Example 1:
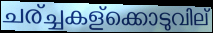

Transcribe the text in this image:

ചര്ച്ചകള്ക്കൊടുവില്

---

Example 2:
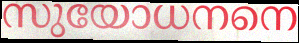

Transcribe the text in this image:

സുയോധനനെ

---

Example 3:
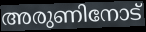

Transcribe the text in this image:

അരുണിനോട്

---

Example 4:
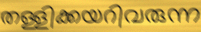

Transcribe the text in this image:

തള്ളിക്കയറിവരുന്ന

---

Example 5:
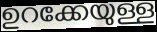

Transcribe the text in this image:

ഉറക്കേയുള്ള